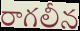
రాగలీన